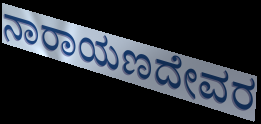
ನಾರಾಯಣದೇವರ